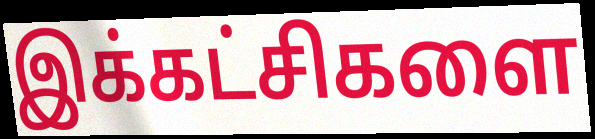
இக்கட்சிகளை